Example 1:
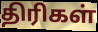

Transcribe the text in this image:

திரிகள்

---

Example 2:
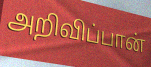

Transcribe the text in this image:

அறிவிப்பான்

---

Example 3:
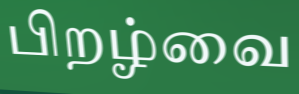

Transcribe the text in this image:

பிறழ்வை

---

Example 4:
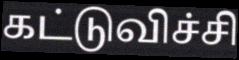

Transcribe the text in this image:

கட்டுவிச்சி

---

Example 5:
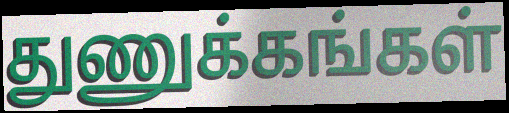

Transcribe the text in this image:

துணுக்கங்கள்